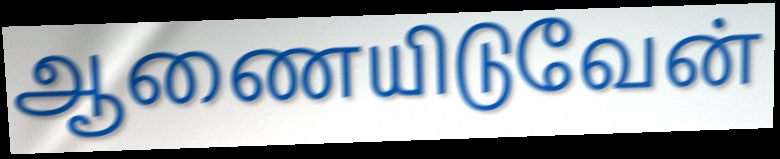
ஆணையிடுவேன்